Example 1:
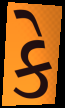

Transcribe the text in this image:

કે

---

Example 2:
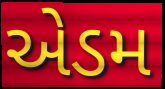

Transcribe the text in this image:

એડમ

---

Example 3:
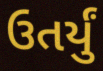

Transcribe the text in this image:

ઉતર્યું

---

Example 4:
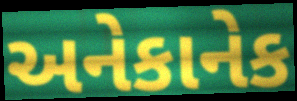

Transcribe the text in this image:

અનેકાનેક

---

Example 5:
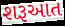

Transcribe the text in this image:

શરૂઆત